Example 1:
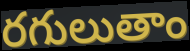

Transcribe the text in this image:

రగులుతాం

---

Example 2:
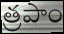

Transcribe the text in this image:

త్రపాం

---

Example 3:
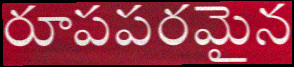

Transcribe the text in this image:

రూపపరమైన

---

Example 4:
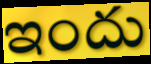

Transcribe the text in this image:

ఇందు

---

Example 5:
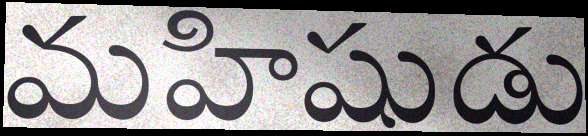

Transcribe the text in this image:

మహిషుడు